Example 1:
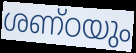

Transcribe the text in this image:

ശണ്ഠയും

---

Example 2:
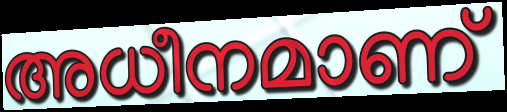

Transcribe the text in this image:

അധീനമാണ്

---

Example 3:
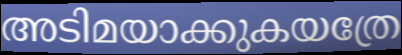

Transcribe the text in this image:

അടിമയാക്കുകയത്രേ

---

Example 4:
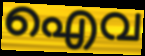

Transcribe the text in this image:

ഐവ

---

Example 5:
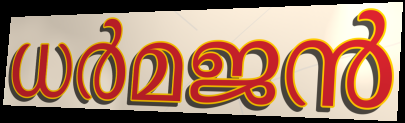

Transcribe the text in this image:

ധർമജൻ